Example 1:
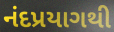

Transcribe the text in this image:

નંદપ્રયાગથી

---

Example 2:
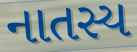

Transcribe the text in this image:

નાતસ્ય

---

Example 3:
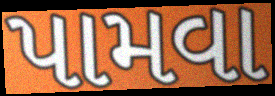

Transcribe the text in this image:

પામવા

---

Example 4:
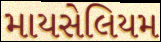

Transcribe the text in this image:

માયસેલિયમ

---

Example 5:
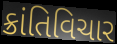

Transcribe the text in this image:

ક્રાંતિવિચાર